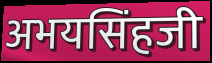
अभयसिंहजी